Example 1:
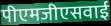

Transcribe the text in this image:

पीएमजीएसवाई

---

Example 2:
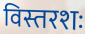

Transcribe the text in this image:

विस्तरशः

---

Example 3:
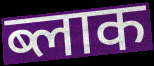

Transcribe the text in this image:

ब्लाक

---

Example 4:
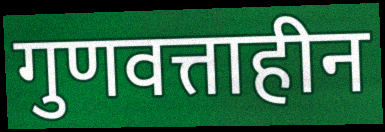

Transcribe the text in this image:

गुणवत्ताहीन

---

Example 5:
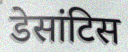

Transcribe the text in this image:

डेसांटिस